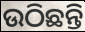
ଉଠିଛନ୍ତି